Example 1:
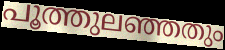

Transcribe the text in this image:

പൂത്തുലഞ്ഞതും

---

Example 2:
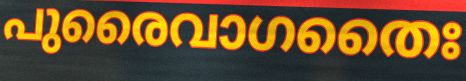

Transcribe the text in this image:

പുരൈവാഗതൈഃ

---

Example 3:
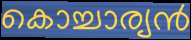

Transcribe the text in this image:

കൊച്ചാര്യൻ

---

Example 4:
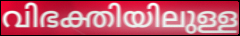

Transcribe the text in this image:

വിഭക്തിയിലുള്ള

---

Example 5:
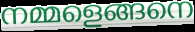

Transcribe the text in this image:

നമ്മളെങ്ങനെ